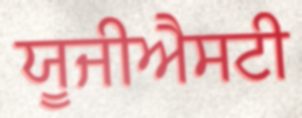
ਯੂਜੀਐਸਟੀ